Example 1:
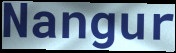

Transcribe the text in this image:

Nangur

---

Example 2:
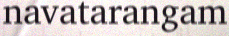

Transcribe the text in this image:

navatarangam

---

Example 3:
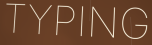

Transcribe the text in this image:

TYPING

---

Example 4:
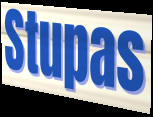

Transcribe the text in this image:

Stupas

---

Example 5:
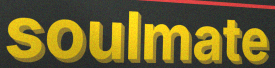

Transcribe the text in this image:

soulmate